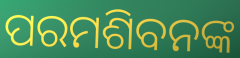
ପରମଶିବନଙ୍କ